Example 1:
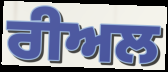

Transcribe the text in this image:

ਰੀਅਲ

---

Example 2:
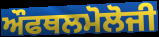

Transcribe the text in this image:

ਔਫਥਲਮੋਲੋਜੀ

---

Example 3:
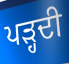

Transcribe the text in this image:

ਪੜ੍ਹਦੀ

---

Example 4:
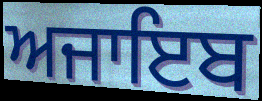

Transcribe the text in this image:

ਅਜਾਇਬ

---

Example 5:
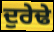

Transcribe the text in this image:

ਦੁਰੇਢੇ